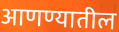
आणण्यातील